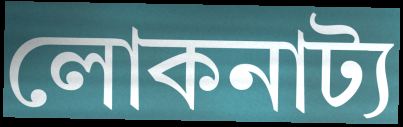
লোকনাট্য